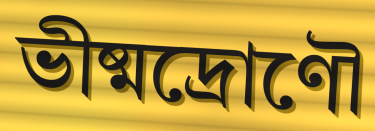
ভীষ্মদ্রোণৌ